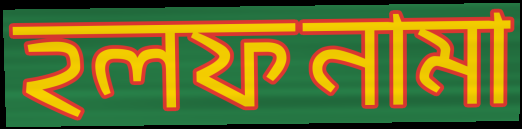
হলফনামা